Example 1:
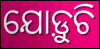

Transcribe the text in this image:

ଯୋଡ଼ୁଚି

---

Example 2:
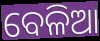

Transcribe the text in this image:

ବେଳିଆ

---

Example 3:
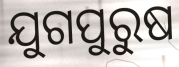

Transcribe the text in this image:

ଯୁଗପୁରୁଷ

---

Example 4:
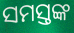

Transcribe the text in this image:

ସମସ୍ତଙ୍କ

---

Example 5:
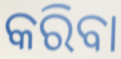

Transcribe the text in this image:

କରିବା